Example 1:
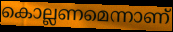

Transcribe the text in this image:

കൊല്ലണമെന്നാണ്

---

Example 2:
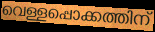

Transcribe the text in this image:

വെള്ളപ്പൊക്കത്തിന്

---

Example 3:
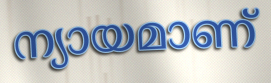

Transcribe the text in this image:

ന്യായമാണ്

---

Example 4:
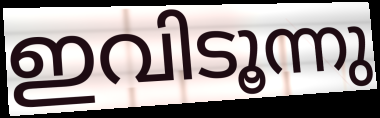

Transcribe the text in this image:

ഇവിടൂന്നു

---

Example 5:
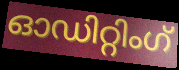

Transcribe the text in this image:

ഓഡിറ്റിംഗ്